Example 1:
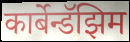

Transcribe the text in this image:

कार्बेन्डॅझिम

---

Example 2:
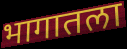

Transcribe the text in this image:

भागातला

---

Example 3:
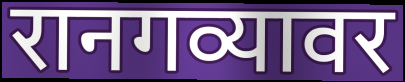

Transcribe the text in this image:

रानगव्यावर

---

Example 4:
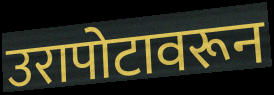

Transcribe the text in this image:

उरापोटावरून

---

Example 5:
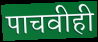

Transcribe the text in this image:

पाचवीही